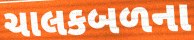
ચાલકબળના